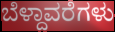
ಬೆಳ್ದಾವರೆಗಳು